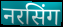
नरसिंग